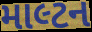
માલ્ટન